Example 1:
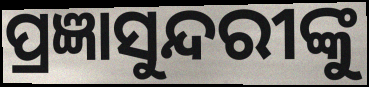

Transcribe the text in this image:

ପ୍ରଜ୍ଞାସୁନ୍ଦରୀଙ୍କୁ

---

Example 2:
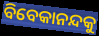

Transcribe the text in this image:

ବିବେକାନନ୍ଦକୁ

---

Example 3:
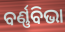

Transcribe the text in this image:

ବର୍ଣ୍ଣବିଭା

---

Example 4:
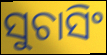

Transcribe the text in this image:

ସୁଚାସିଂ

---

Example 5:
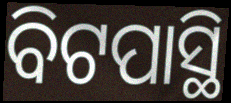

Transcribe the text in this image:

ବିଟପାସ୍ଥି